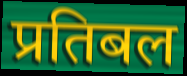
प्रतिबल